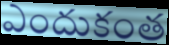
ఎందుకంత